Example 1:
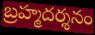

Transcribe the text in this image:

బ్రహ్మదర్శనం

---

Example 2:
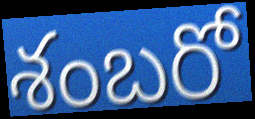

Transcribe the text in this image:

శంబరో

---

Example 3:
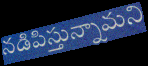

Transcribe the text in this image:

నడిపిస్తున్నామని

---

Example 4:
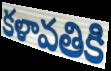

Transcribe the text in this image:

కళావతికి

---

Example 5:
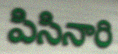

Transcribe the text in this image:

పిసినారి